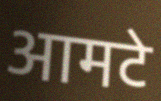
आमटे